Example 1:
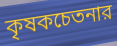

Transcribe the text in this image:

কৃষকচেতনার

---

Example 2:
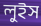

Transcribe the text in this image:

লুইস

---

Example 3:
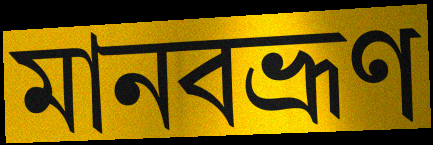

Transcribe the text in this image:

মানবভ্রূণ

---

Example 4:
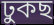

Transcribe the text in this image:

ঢুকছ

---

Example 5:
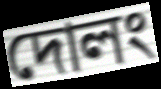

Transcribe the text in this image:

দোলং